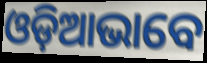
ଓଡ଼ିଆଭାବେ